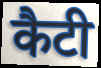
कैटी